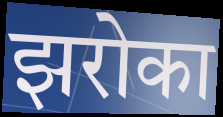
झरोका